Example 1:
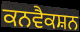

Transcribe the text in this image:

ਕਨਵੈਕਸ਼ਨ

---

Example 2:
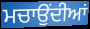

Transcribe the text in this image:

ਮਚਾਉਂਦੀਆਂ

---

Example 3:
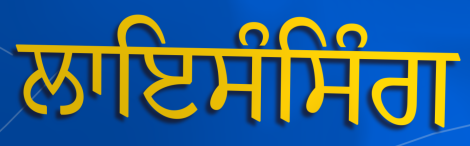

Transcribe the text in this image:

ਲਾਇਸੰਸਿੰਗ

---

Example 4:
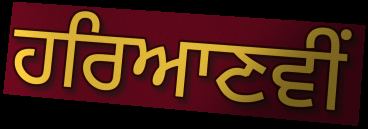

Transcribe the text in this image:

ਹਰਿਆਣਵੀਂ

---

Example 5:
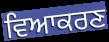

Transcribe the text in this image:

ਵਿਆਕਰਣ